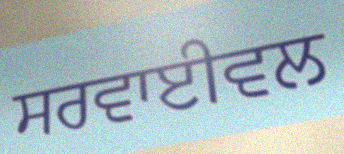
ਸਰਵਾਈਵਲ